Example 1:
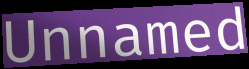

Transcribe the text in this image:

Unnamed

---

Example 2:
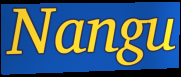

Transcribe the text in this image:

Nangu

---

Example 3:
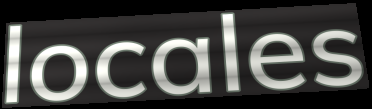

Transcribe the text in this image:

locales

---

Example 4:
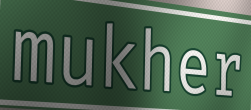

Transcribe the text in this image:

mukher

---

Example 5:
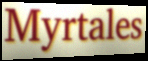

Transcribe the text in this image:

Myrtales